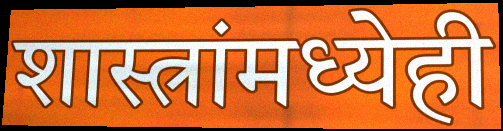
शास्त्रांमध्येही